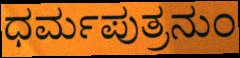
ಧರ್ಮಪುತ್ರನುಂ